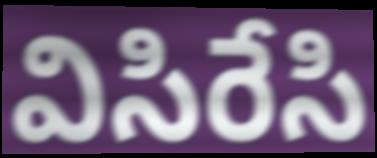
విసిరేసి